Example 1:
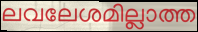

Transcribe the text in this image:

ലവലേശമില്ലാത്ത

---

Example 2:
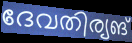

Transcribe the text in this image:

ദേവതിര്യങ്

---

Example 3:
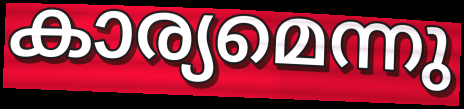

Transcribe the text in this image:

കാര്യമെന്നു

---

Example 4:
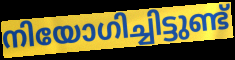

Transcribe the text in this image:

നിയോഗിച്ചിട്ടുണ്ട്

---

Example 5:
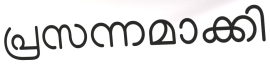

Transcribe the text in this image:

പ്രസന്നമാക്കി